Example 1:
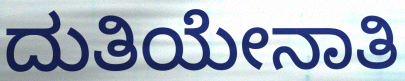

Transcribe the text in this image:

ದುತಿಯೇನಾತಿ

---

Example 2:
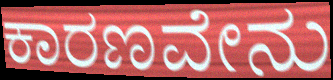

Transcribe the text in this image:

ಕಾರಣವೇನು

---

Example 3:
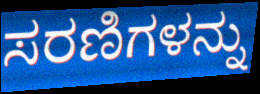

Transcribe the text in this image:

ಸರಣಿಗಳನ್ನು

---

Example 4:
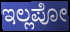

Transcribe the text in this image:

ಇಲ್ಲಪೋ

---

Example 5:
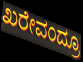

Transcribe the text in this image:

ಖರೇವಂದ್ರೂ